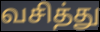
வசித்து